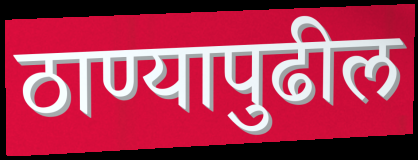
ठाण्यापुढील